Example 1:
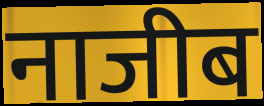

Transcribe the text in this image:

नाजीब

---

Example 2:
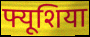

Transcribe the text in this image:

फ्यूशिया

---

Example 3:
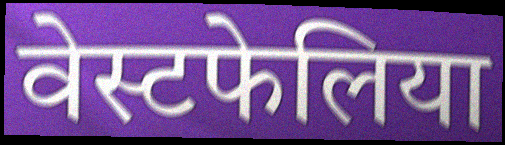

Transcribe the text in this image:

वेस्टफेलिया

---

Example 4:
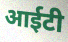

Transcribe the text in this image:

आईटी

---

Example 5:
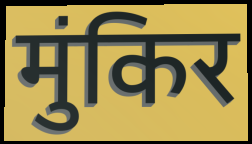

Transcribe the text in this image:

मुंकिर